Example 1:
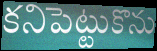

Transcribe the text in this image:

కనిపెట్టుకొను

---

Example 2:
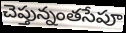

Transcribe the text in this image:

చెప్తున్నంతసేపూ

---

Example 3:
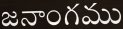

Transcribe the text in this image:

జనాంగము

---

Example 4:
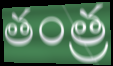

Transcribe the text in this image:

తంత్ర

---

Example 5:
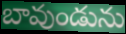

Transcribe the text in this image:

బావుండును